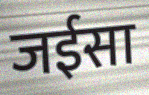
जईसा